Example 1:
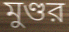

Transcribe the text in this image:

মুণ্ডর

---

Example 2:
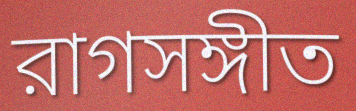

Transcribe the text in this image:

রাগসঙ্গীত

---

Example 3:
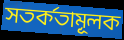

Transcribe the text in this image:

সতর্কতামূলক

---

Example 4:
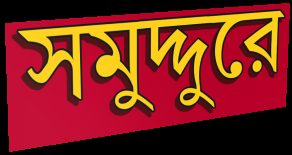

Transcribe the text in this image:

সমুদ্দুরে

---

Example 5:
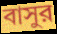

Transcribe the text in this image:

বাসুর